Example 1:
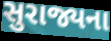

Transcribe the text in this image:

સુરાજ્યના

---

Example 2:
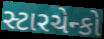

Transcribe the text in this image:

સ્ટારચેન્કો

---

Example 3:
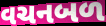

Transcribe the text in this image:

વચનબળ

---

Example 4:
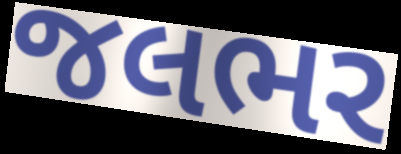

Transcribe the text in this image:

જલભર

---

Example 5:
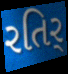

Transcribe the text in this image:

રતિર્